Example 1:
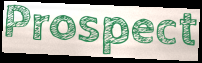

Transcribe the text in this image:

Prospect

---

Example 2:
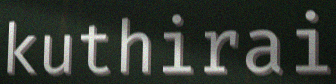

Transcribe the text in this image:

kuthirai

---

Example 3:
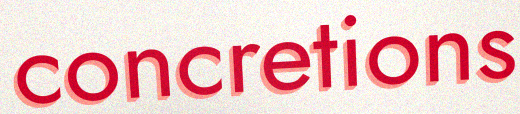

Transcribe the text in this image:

concretions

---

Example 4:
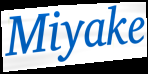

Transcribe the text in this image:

Miyake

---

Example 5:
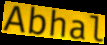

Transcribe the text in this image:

Abhal